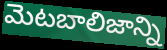
మెటబాలిజాన్ని